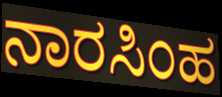
ನಾರಸಿಂಹ